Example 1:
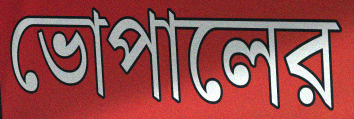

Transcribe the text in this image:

ভোপালের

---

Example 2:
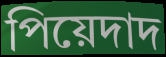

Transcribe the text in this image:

পিয়েদাদ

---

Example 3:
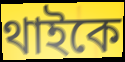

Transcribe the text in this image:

থাইকে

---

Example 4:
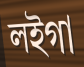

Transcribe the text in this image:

লইগা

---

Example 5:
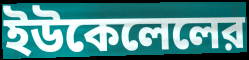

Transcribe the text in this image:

ইউকেলেলের